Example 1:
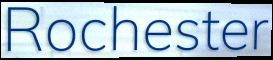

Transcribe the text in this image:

Rochester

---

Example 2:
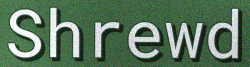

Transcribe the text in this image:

Shrewd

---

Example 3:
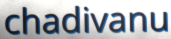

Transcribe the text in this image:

chadivanu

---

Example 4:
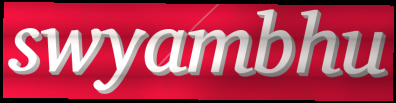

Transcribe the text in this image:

swyambhu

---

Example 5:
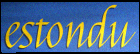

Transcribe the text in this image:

estondu